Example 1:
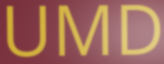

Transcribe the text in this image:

UMD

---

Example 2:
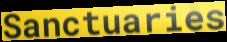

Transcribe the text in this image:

Sanctuaries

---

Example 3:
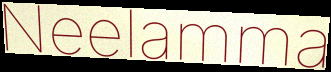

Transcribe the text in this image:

Neelamma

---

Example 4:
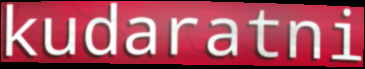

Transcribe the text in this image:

kudaratni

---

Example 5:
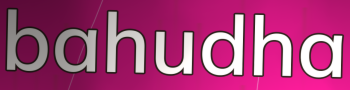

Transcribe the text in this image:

bahudha